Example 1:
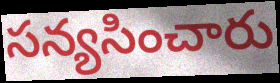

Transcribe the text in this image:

సన్యసించారు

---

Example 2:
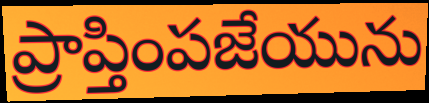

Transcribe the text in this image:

ప్రాప్తింపజేయును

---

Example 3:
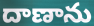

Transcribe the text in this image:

దాణాను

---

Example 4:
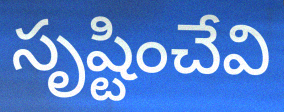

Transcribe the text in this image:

సృష్టించేవి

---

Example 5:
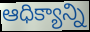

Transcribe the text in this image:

ఆధిక్యాన్ని